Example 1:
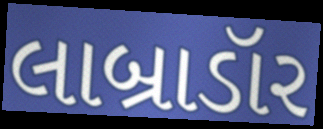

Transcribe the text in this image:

લાબ્રાડૉર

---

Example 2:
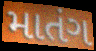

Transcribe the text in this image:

માતંગ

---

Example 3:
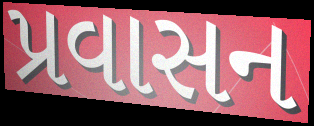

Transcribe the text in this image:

પ્રવાસન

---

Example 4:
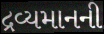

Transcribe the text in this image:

દ્રવ્યમાનની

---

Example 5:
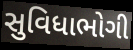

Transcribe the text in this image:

સુવિધાભોગી